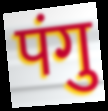
पंगु